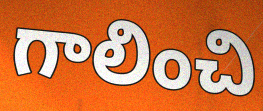
గాలించి